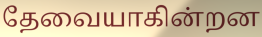
தேவையாகின்றன